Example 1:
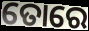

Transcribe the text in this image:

ତୋରେ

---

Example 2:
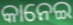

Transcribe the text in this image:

କାନେଇ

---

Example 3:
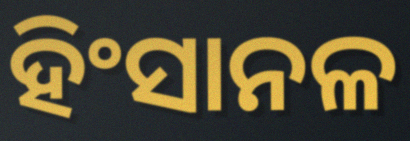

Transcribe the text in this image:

ହିଂସାନଳ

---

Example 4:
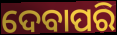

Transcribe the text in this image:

ଦେବାପରି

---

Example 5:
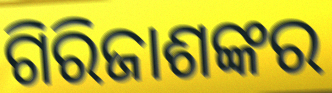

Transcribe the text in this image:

ଗିରିଜାଶଙ୍କର